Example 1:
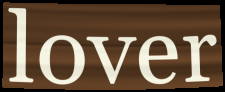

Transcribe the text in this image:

lover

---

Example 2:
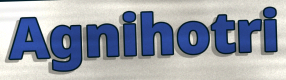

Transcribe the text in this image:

Agnihotri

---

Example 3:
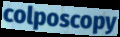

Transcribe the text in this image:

colposcopy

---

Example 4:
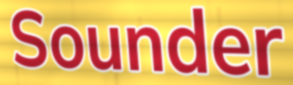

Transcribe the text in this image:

Sounder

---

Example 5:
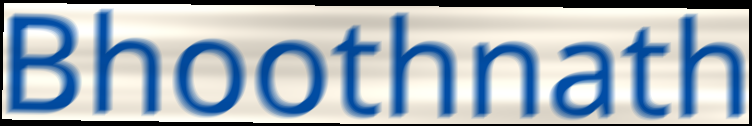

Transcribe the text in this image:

Bhoothnath